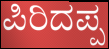
ಪಿರಿದಪ್ಪ